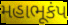
મહાભૂકંપ